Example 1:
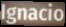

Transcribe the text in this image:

Ignacio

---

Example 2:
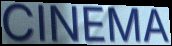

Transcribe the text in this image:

CINEMA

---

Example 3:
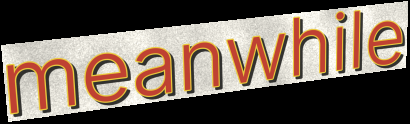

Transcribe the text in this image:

meanwhile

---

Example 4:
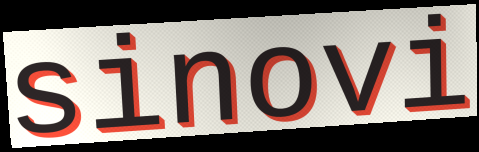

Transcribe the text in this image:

sinovi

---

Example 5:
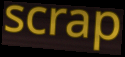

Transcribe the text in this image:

scrap